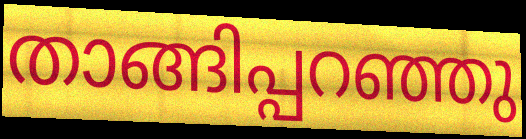
താങ്ങിപ്പറഞ്ഞു